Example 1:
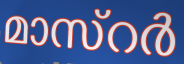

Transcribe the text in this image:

മാസ്റർ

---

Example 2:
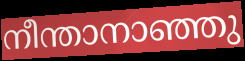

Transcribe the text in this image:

നീന്താനാഞ്ഞു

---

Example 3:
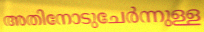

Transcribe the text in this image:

അതിനോടുചേർന്നുള്ള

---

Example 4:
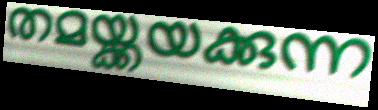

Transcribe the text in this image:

തമയ്ക്കയക്കുന്ന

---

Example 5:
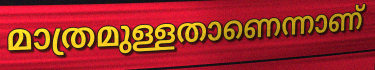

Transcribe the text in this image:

മാത്രമുള്ളതാണെന്നാണ്